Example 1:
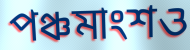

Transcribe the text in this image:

পঞ্চমাংশও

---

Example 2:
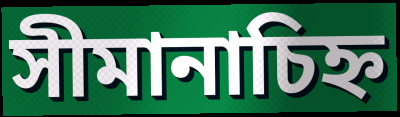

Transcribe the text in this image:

সীমানাচিহ্ন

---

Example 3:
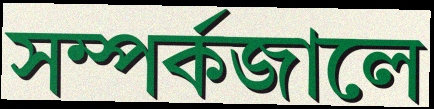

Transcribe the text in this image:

সম্পর্কজালে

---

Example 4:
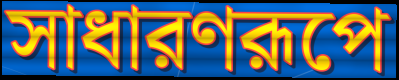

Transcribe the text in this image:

সাধারণরূপে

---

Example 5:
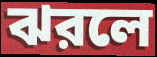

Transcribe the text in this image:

ঝরলে